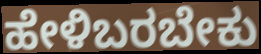
ಹೇಳಿಬರಬೇಕು